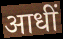
आधीं